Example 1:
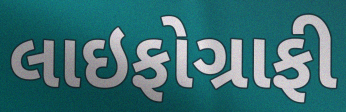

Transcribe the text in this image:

લાઇફોગ્રાફી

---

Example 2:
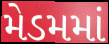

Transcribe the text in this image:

મેડમમાં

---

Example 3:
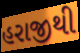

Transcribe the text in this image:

હરાજીથી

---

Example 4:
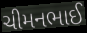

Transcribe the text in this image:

ચીમનભાઈ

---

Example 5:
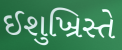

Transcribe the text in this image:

ઈશુખ્રિસ્તે